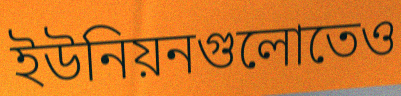
ইউনিয়নগুলোতেও